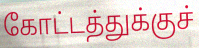
கோட்டத்துக்குச்